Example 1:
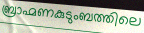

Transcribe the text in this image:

ബ്രാഹ്മണകുടുംബത്തിലെ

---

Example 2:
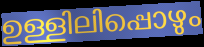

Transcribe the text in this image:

ഉള്ളിലിപ്പൊഴും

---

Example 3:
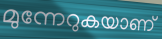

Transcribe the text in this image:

മുന്നേറുകയാണ്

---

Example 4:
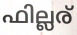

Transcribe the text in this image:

ഫില്ലര്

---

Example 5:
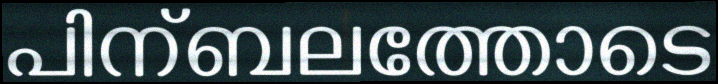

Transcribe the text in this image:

പിന്ബലത്തോടെ